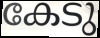
കേടു